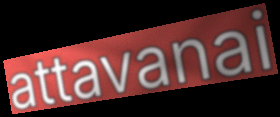
attavanai